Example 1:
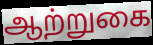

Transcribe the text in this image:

ஆற்றுகை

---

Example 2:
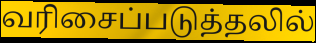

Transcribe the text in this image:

வரிசைப்படுத்தலில்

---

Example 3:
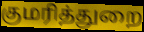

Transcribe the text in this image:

குமரித்துறை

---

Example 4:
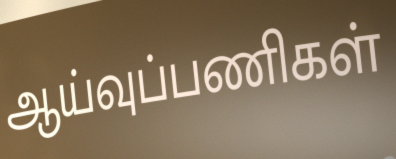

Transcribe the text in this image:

ஆய்வுப்பணிகள்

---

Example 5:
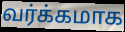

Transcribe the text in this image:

வர்க்கமாக